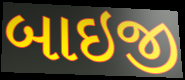
બાઇજી